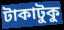
টাকাটুকু